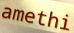
amethi